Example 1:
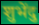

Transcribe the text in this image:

शुभेंदु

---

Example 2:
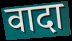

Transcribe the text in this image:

वादा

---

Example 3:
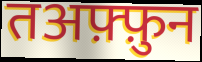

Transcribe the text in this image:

तअफ़्फ़ुन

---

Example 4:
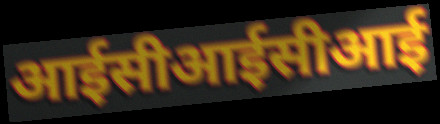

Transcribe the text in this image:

आईसीआईसीआई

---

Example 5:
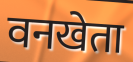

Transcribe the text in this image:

वनखेता